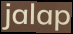
jalap